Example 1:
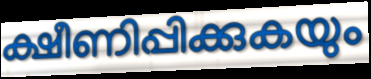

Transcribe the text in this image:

ക്ഷീണിപ്പിക്കുകയും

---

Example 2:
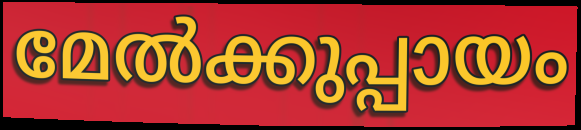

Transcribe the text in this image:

മേൽക്കുപ്പായം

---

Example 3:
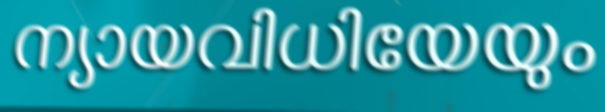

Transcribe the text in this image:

ന്യായവിധിയേയും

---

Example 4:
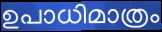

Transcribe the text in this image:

ഉപാധിമാത്രം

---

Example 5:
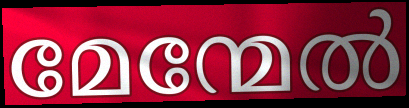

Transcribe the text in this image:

മേന്മേൽ